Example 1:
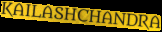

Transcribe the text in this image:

KAILASHCHANDRA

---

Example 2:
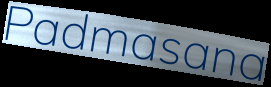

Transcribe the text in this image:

Padmasana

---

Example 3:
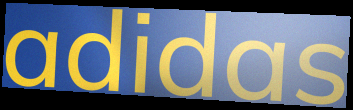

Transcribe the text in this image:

adidas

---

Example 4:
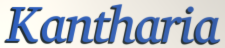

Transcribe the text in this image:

Kantharia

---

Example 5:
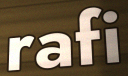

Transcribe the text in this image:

rafi